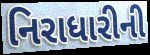
નિરાધારીની